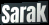
Sarak